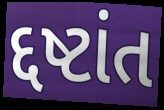
દ્દષ્ટાંત